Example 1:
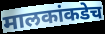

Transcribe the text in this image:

मालकांकडेच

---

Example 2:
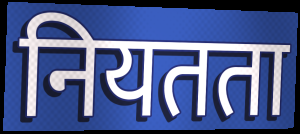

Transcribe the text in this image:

नियतता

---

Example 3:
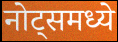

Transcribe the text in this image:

नोट्समध्ये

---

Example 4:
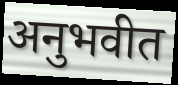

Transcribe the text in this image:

अनुभवीत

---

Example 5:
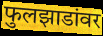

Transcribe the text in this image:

फुलझाडांवर